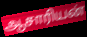
ஆசாரியன்